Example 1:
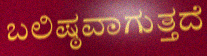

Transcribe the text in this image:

ಬಲಿಷ್ಠವಾಗುತ್ತದೆ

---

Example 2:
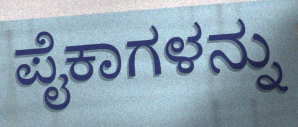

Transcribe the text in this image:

ಪೈಕಾಗಳನ್ನು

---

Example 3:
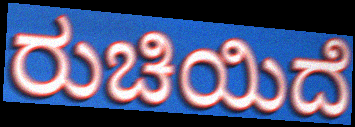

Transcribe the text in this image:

ರುಚಿಯಿದೆ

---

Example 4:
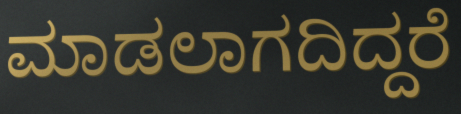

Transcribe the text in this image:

ಮಾಡಲಾಗದಿದ್ದರೆ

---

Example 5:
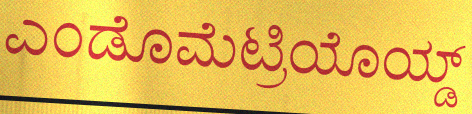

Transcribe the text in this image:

ಎಂಡೊಮೆಟ್ರಿಯೊಯ್ಡ್